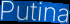
Putina